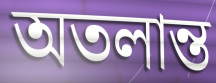
অতলান্ত